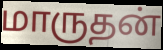
மாருதன்